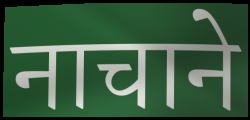
नाचाने